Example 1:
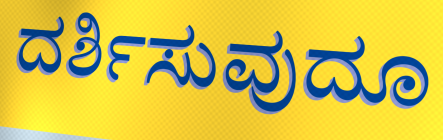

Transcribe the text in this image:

ದರ್ಶಿಸುವುದೂ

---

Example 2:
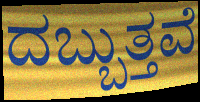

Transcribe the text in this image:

ದಬ್ಬುತ್ತವೆ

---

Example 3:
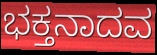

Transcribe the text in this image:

ಭಕ್ತನಾದವ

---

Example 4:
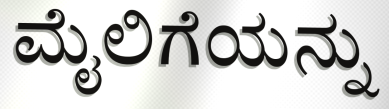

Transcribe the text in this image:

ಮೈಲಿಗೆಯನ್ನು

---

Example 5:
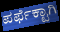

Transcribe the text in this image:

ಪರ್ಫೆಕ್ಟಾಗಿ